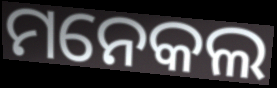
ମନେକଲ